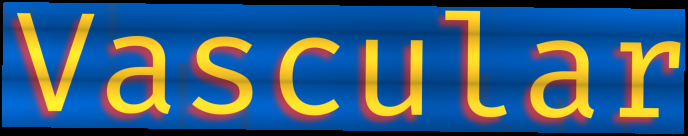
Vascular